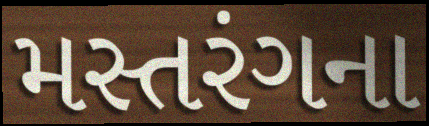
મસ્તરંગના